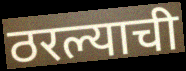
ठरल्याची